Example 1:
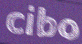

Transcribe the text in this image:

cibo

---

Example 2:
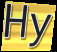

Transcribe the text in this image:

Hy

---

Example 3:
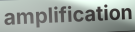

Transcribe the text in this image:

amplification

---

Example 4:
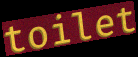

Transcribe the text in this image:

toilet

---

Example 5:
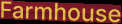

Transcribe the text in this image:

Farmhouse